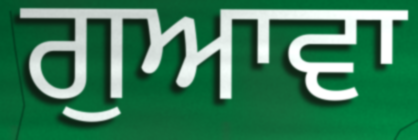
ਗੁਆਵਾ